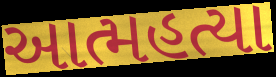
આત્મહત્યા